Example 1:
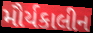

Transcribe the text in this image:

મૌર્યકાલીન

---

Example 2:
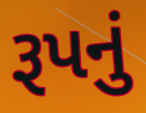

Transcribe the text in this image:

રૂપનું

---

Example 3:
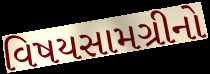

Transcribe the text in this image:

વિષયસામગ્રીનો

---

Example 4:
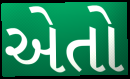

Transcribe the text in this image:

એતો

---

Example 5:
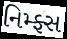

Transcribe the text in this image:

નિમ્ફ્સ